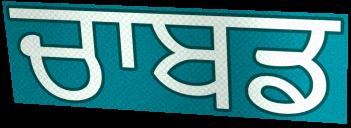
ਚਾਬਡ